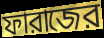
ফারাজের